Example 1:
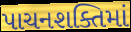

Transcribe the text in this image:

પાચનશક્તિમાં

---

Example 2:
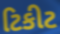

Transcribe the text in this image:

ટિકીટ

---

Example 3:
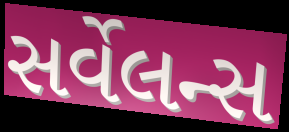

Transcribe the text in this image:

સર્વેલન્સ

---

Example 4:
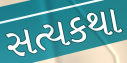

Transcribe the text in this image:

સત્યકથા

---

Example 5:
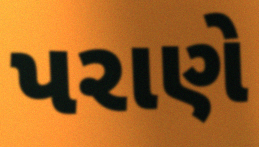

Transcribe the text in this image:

પરાણે